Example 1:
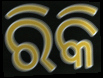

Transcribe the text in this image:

ରିକି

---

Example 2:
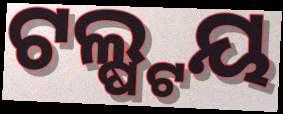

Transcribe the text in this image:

ଟଲ୍ଷ୍ଟୟ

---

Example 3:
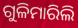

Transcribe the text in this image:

ଗୁଳିମାରିଲି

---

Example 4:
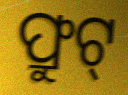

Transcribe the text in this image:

ଫ୍ରୁଟ୍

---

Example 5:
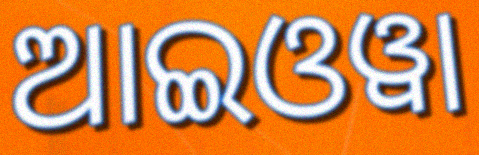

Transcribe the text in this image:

ଆଇଓୱା